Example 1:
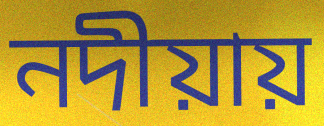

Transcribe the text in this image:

নদীয়ায়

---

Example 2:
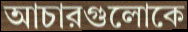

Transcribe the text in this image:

আচারগুলোকে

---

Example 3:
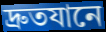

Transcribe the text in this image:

দ্রুতযানে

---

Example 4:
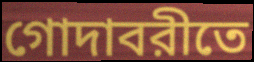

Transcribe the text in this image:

গোদাবরীতে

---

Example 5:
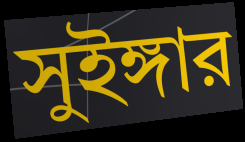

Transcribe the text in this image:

সুইঙ্গার